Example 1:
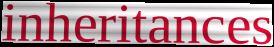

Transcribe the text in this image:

inheritances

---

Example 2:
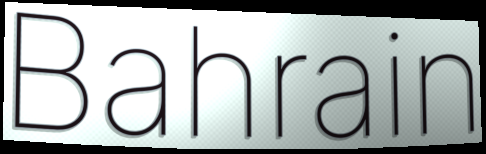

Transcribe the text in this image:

Bahrain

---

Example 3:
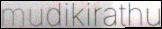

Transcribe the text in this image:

mudikirathu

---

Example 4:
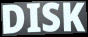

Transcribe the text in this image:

DISK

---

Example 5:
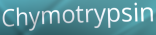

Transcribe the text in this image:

Chymotrypsin